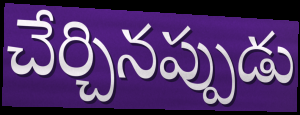
చేర్చినప్పుడు